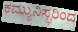
ಕಮ್ಯುನಿಸ್ಟರಿಂದ